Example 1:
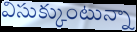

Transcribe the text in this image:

విసుక్కుంటున్నా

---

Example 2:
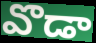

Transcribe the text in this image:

వొడా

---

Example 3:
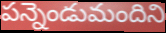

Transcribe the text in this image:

పన్నెండుమందిని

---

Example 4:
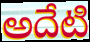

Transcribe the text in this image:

అదేటి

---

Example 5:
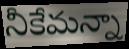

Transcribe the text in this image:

నీకేమన్నా